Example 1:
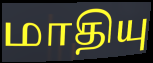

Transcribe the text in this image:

மாதியு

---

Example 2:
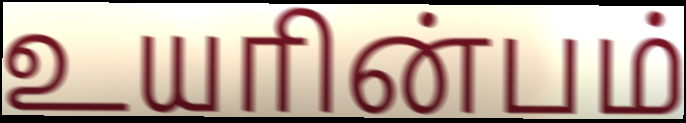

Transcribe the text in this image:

உயரின்பம்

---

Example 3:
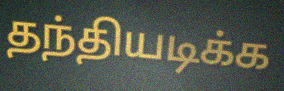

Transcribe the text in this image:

தந்தியடிக்க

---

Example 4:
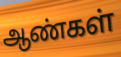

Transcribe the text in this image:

ஆண்கள்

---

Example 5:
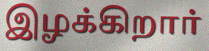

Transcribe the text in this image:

இழக்கிறார்